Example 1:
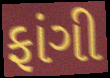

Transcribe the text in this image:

ફાંગી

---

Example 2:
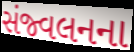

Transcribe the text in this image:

સંજ્વલનના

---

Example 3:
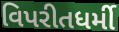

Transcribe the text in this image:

વિપરીતધર્મી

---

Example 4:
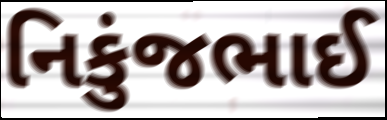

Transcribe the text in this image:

નિકુંજભાઈ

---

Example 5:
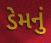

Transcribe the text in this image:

ડેમનું